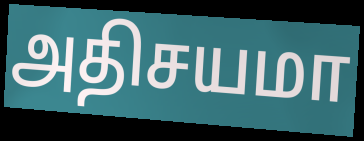
அதிசயமா